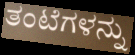
ತಂಟೆಗಳನ್ನು